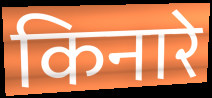
किनारे